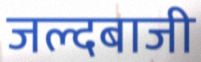
जल्दबाजी